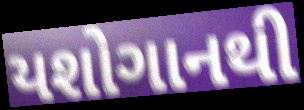
યશોગાનથી